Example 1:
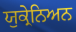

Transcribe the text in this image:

ਯੁਕ੍ਰੇਨਿਅਨ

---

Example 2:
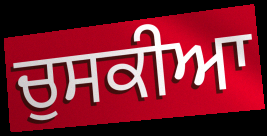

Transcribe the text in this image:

ਚੁਸਕੀਆ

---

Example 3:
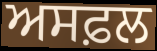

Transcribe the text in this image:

ਅਸਫ਼ਲ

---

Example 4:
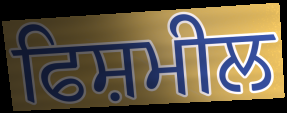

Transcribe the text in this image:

ਫਿਸ਼ਮੀਲ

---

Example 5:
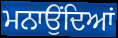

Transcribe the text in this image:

ਮਨਾਉਂਦਿਆਂ